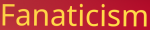
Fanaticism